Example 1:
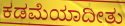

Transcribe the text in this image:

ಕಡಮೆಯಾದೀತು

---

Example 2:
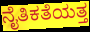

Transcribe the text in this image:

ನೈತಿಕತೆಯತ್ತ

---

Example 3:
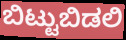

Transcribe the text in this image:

ಬಿಟ್ಟುಬಿಡಲಿ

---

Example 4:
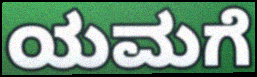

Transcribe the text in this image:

ಯಮಗೆ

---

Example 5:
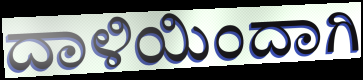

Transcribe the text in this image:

ದಾಳಿಯಿಂದಾಗಿ